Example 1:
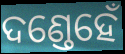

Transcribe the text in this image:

ଦଣ୍ଡେହେଁ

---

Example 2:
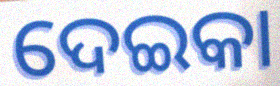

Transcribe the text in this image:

ଦେଇକା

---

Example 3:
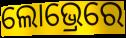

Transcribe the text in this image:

ଲୋଭ୍ରେରେ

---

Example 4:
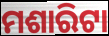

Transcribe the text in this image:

ମଶାରିଟା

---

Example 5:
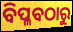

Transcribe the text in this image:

ବିପ୍ଳବଠାରୁ